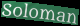
Soloman